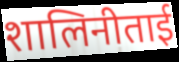
शालिनीताई